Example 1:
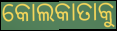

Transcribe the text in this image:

କୋଲକାତାକୁ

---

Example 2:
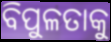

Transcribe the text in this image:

ବିପୁଳତାକୁ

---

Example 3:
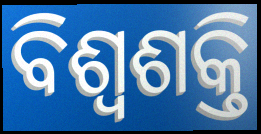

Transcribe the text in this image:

ବିଶ୍ଵଶକ୍ତି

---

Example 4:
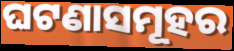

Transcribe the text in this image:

ଘଟଣାସମୂହର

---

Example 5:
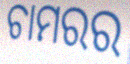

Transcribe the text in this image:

ଚାମରର